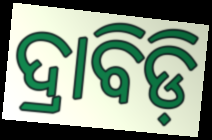
ଦ୍ରାବିଡ଼ି